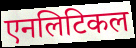
एनलिटिकल